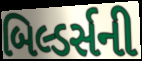
બિલ્ડર્સની